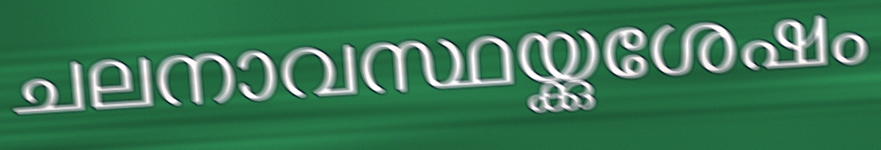
ചലനാവസ്ഥയ്ക്കുശേഷം